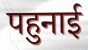
पहुनाई